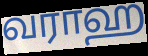
வராஹ